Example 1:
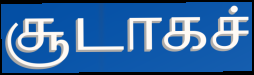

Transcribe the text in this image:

சூடாகச்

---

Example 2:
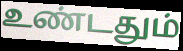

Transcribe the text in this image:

உண்டதும்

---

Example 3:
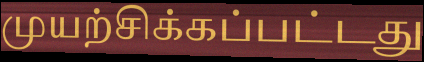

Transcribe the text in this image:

முயற்சிக்கப்பட்டது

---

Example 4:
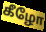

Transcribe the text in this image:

கீழோ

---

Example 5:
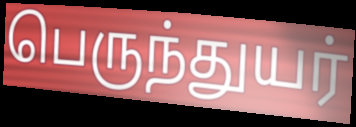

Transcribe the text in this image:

பெருந்துயர்